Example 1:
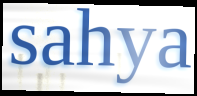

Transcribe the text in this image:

sahya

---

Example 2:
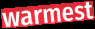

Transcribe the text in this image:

warmest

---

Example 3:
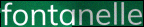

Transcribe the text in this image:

fontanelle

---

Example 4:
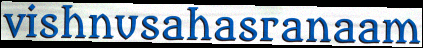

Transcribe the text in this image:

vishnusahasranaam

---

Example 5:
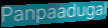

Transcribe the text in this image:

Panpaadugal